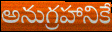
అనుగ్రహానికే